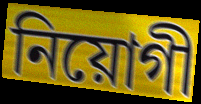
নিয়োগী